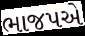
ભાજપએ